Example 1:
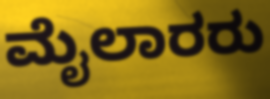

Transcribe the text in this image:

ಮೈಲಾರರು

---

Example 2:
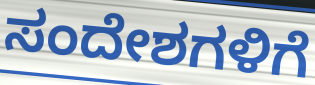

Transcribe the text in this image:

ಸಂದೇಶಗಳಿಗೆ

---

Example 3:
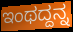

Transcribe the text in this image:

ಇಂಥದ್ದನ್ನ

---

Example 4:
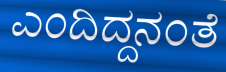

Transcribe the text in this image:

ಎಂದಿದ್ದನಂತೆ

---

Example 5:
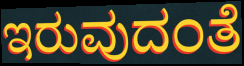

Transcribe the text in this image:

ಇರುವುದಂತೆ